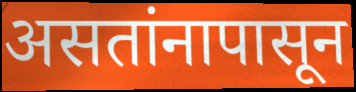
असतांनापासून